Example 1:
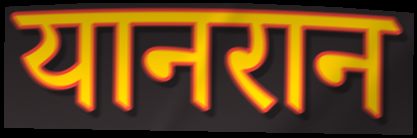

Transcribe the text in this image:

यानरान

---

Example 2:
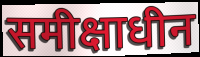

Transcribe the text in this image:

समीक्षाधीन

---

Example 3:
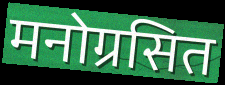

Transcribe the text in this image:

मनोग्रसित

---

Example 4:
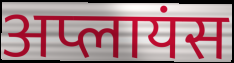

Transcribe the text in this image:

अप्‍लायंस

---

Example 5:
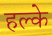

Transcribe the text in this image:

हल्के